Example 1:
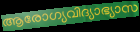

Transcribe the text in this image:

ആരോഗ്യവിദ്യാഭ്യാസ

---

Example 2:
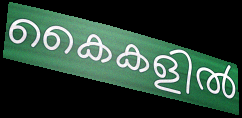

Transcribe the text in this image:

കൈകളിൽ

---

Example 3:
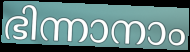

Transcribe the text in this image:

ഭിന്നാനാം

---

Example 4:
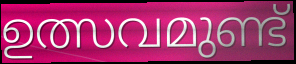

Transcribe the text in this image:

ഉത്സവമുണ്ട്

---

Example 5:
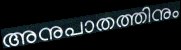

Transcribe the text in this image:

അനുപാതത്തിനും